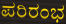
ಪರಿರಂಭ